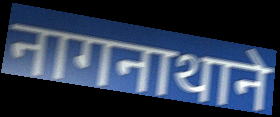
नागनाथाने